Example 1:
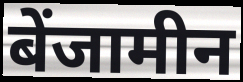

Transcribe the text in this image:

बेंजामीन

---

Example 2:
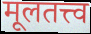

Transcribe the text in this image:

मूलतत्त्व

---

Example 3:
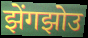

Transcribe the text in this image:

झेंगझोउ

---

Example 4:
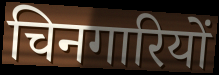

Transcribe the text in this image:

चिनगारियों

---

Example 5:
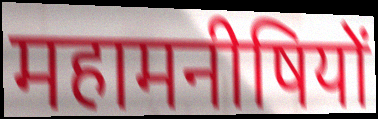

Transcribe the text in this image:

महामनीषियों